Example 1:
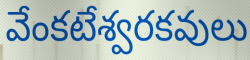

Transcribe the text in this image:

వేంకటేశ్వరకవులు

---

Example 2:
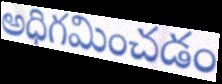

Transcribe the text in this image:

అధిగమించడం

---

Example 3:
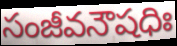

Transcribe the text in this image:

సంజీవనౌషధిః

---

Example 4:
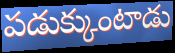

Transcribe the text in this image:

పడుక్కుంటాడు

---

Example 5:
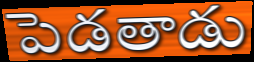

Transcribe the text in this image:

పెడతాడు